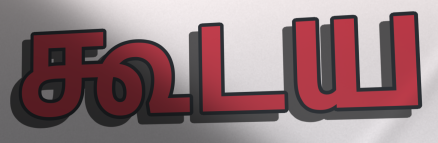
கூடய